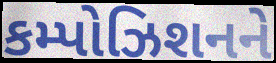
કમ્પોઝિશનને